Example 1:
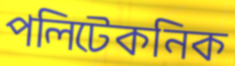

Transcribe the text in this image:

পলিটেকনিক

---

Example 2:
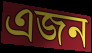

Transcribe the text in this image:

এজন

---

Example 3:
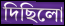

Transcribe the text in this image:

দিছিলো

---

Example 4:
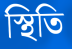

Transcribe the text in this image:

স্থিতি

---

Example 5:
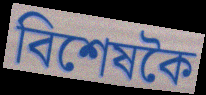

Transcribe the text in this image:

বিশেষকৈ